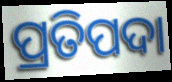
ପ୍ରତିପଦା